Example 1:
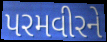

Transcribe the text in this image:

પરમવીરને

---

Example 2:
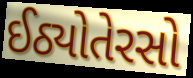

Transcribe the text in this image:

ઈઠ્યોતેરસો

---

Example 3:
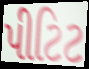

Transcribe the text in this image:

પીટિટ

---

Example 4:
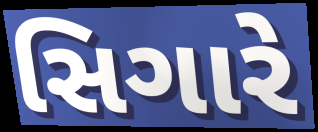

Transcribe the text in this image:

સિગારે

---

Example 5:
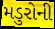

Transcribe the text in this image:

મડુરોની